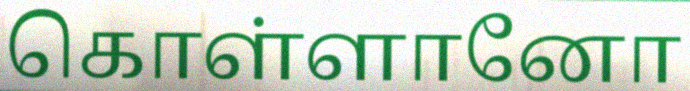
கொள்ளானோ